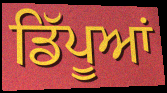
ਡਿੱਪੂਆਂ